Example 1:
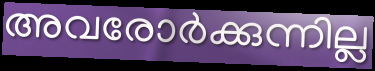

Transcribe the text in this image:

അവരോർക്കുന്നില്ല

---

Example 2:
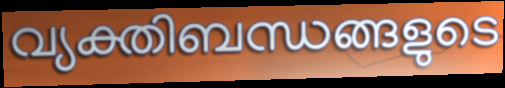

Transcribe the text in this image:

വ്യക്തിബന്ധങ്ങളുടെ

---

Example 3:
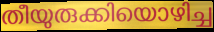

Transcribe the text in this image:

തീയുരുക്കിയൊഴിച്ച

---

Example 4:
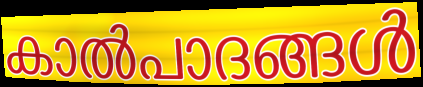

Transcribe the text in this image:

കാൽപാദങ്ങൾ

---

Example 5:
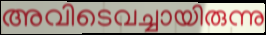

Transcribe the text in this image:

അവിടെവച്ചായിരുന്നു